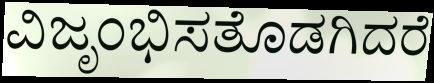
ವಿಜೃಂಭಿಸತೊಡಗಿದರೆ